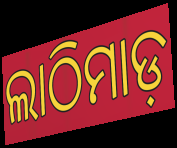
ଲାଠିମାଡ଼